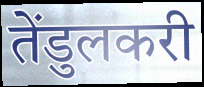
तेंडुलकरी